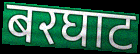
बरघाट